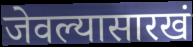
जेवल्यासारखं